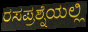
ರಸಪ್ರಶ್ನೆಯಲ್ಲಿ